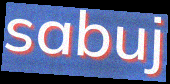
sabuj